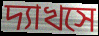
দ্যাখসে